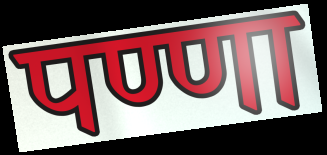
पण्णा